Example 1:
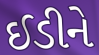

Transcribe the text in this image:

ઈડીને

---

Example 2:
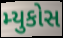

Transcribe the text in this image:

મ્યુકોસ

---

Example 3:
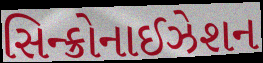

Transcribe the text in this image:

સિન્ક્રોનાઈઝેશન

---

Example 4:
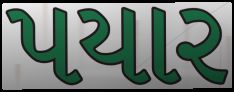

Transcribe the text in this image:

પયાર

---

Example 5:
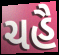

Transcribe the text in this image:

ચહૈ